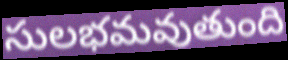
సులభమవుతుంది